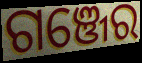
ଗଞ୍ଜେର